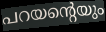
പറയന്റെയും